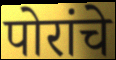
पोरांचे